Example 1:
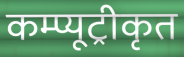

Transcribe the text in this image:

कम्प्यूट्रीकृत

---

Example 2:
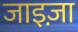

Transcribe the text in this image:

जाइज़ा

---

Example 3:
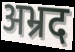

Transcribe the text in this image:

अभ्रद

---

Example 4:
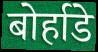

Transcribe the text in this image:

बोर्हाडे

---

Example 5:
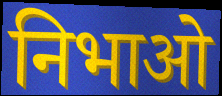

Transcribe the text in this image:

निभाओ